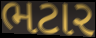
ભટાર